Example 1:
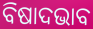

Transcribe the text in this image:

ବିଷାଦଭାବ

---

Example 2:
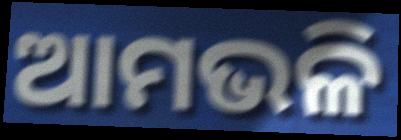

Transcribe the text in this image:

ଆମଭଳି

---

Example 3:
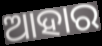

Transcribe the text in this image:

ଆହାର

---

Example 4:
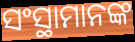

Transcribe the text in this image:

ସଂସ୍ଥାମାନଙ୍କ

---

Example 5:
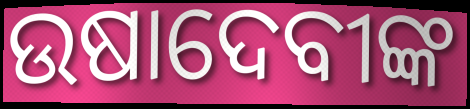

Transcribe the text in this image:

ଉଷାଦେବୀଙ୍କ